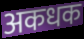
अकधक